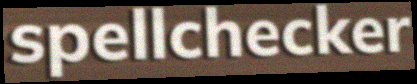
spellchecker